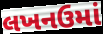
લખનઉમાં